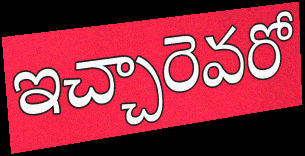
ఇచ్చారెవరో